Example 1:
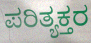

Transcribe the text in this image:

ಪರಿತ್ಯಕ್ತರ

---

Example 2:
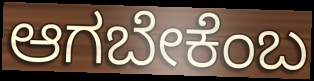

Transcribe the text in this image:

ಆಗಬೇಕೆಂಬ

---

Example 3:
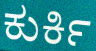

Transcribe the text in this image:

ಕುರ್ಕಿ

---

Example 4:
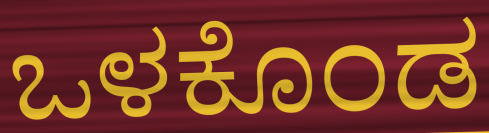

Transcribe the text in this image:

ಒಳಕೊಂಡ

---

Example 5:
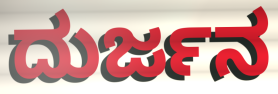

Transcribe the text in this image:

ದುರ್ಜನ